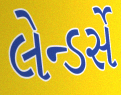
લેન્ડર્સે